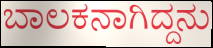
ಬಾಲಕನಾಗಿದ್ದನು